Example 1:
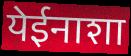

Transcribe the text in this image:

येईनाशा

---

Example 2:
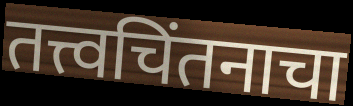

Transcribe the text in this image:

तत्त्वचिंतनाचा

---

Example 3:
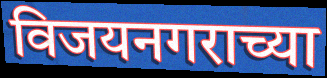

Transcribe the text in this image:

विजयनगराच्या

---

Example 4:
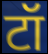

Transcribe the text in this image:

टॉ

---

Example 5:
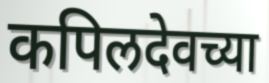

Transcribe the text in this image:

कपिलदेवच्या